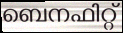
ബെനഫിറ്റ്